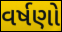
વર્ષણો